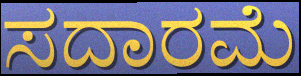
ಸದಾರಮೆ